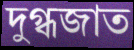
দুগ্ধজাত